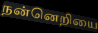
நன்னெறியை